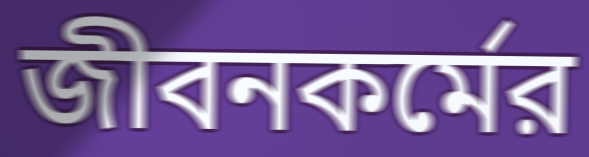
জীবনকর্মের